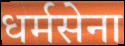
धर्मसेना